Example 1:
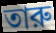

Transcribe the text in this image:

তারু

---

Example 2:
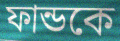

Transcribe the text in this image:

ফান্ডকে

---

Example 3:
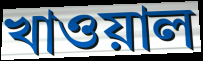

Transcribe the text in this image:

খাওয়াল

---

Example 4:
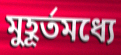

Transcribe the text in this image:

মুহূর্তমধ্যে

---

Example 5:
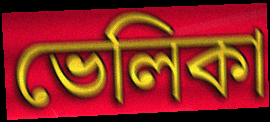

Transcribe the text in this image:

ভেলিকা